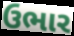
ઉભાર